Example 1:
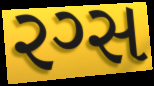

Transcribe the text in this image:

રગ્સ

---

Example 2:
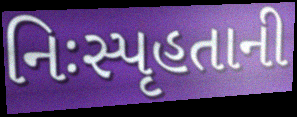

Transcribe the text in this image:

નિઃસ્પૃહતાની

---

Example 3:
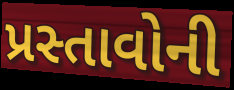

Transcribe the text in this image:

પ્રસ્તાવોની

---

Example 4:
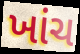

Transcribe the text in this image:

ખાંચ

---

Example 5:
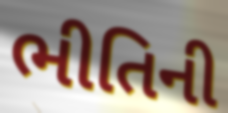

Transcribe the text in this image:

ભીતિની